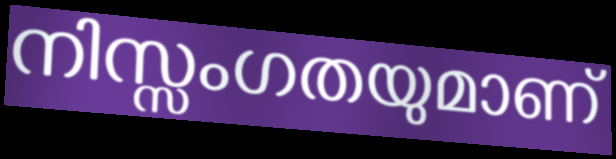
നിസ്സംഗതയുമാണ്